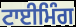
ਟਾਈਮਿੰਗ